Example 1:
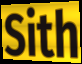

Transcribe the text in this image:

Sith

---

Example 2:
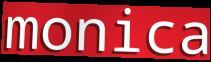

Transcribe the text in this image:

monica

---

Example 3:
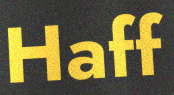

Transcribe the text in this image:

Haff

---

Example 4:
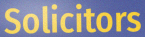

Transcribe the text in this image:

Solicitors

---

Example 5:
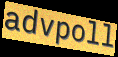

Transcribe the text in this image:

advpoll